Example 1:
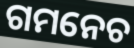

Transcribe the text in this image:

ଗମନେଚ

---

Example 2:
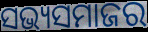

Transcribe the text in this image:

ସଭ୍ୟସମାଜର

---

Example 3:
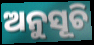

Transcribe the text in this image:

ଅନୁସୂଚି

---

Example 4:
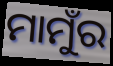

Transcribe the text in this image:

ମାମୁଁର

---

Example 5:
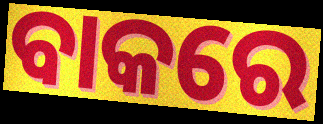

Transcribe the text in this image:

ବାକରେ